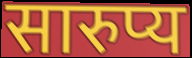
सारुप्य